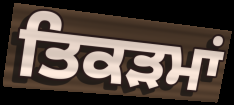
ਤਿਕੜਮਾਂ